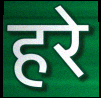
हरे